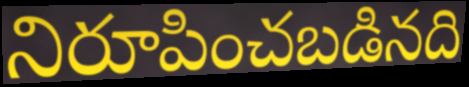
నిరూపించబడినది